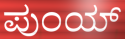
ಪುಂಯ್